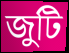
জুটি